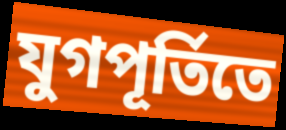
যুগপূর্তিতে